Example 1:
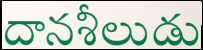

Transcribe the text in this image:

దానశీలుడు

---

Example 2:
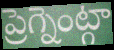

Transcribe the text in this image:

ప్రెగ్నెంట్గా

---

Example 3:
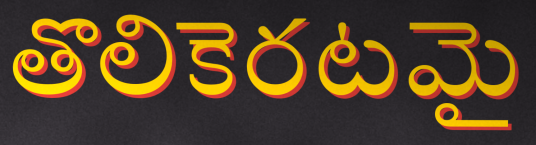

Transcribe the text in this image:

తొలికెరటమై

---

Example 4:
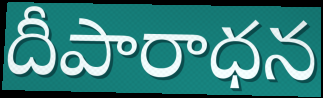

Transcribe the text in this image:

దీపారాధన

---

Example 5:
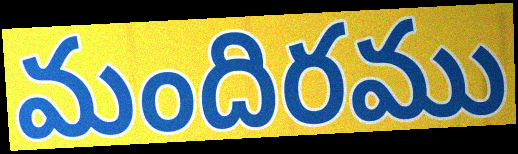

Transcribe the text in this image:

మందిరము